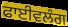
ਫਾਈਵਲੰਗ